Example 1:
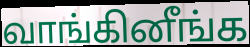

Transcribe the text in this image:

வாங்கினீங்க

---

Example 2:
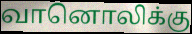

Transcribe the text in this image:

வானொலிக்கு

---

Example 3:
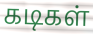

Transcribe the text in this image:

கடிகள்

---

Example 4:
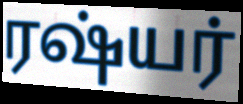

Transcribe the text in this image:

ரஷ்யர்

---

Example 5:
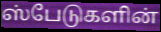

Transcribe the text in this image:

ஸ்பேடுகளின்